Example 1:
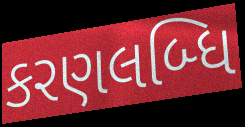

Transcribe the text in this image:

કરણલબ્ધિ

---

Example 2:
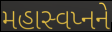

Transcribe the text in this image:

મહાસ્વપ્નને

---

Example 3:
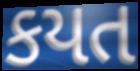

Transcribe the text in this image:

કયત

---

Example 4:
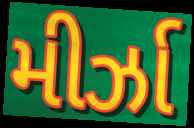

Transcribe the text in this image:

મીર્ઝા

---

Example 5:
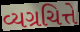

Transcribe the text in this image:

વ્યગ્રચિત્તે